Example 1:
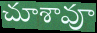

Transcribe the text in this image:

చూశావూ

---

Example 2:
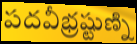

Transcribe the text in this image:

పదవీభ్రష్టుణ్ని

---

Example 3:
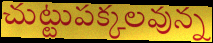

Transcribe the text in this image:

చుట్టుపక్కలవున్న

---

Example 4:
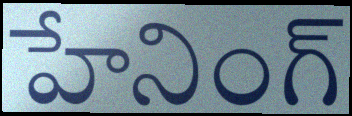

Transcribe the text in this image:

హేనింగ్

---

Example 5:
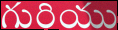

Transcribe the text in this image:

గురియు